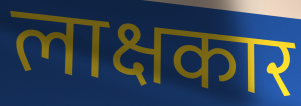
लाक्षकार